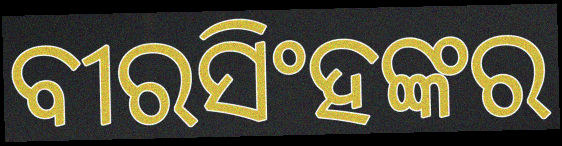
ବୀରସିଂହଙ୍କର